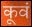
कूवं